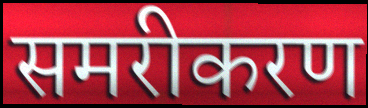
समरीकरण